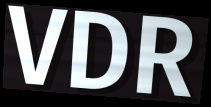
VDR